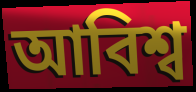
আবিশ্ব